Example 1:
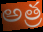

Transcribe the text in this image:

అత్ర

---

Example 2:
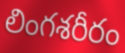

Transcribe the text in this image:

లింగశరీరం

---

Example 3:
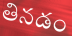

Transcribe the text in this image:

తినడం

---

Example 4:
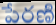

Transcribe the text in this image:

పేరణి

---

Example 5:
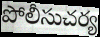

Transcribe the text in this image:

పోలీసుచర్య